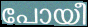
പോയീ